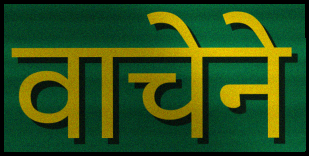
वाचेने